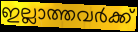
ഇല്ലാത്തവർക്ക്